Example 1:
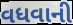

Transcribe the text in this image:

વધવાની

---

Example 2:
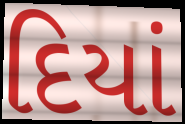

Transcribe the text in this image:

દિયાં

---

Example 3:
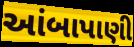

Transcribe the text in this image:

આંબાપાણી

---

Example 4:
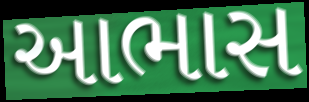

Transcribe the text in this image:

આભાસ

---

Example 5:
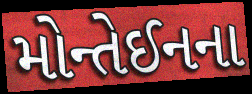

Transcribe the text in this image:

મોન્તેઈનના